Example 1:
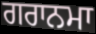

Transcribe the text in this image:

ਗਰਾਨਮਾ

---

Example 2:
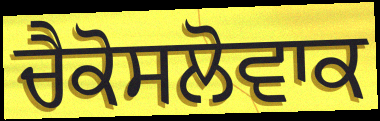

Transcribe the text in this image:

ਚੈਕੋਸਲੋਵਾਕ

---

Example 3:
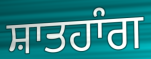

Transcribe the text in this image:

ਸ਼ਾਤਹਾੰਗ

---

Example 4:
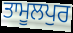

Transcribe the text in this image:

ਤਾਮੂਲਪੁਰ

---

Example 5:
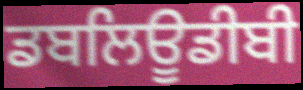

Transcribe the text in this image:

ਡਬਲਿਊਡੀਬੀ